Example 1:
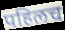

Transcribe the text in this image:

पहिलच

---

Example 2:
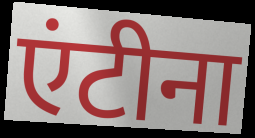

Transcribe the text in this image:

एंटीना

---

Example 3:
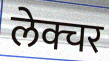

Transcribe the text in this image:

लेक्चर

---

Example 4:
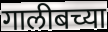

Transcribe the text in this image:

गालीबच्या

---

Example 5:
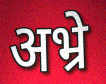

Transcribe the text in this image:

अभ्रे